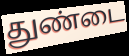
துண்டை